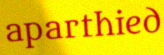
aparthied